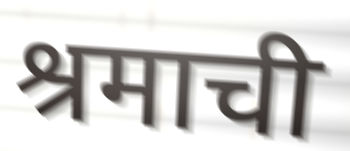
श्रमाची